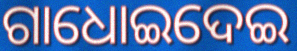
ଗାଧୋଇଦେଇ